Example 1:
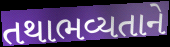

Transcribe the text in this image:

તથાભવ્યતાને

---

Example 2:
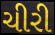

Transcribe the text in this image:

ચીરી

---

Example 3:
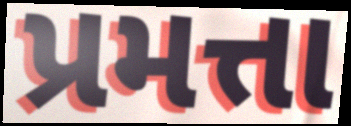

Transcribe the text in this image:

પ્રમત્તા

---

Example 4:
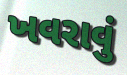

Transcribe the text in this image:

ખવરાવું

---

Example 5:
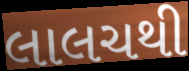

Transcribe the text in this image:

લાલચથી